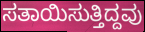
ಸತಾಯಿಸುತ್ತಿದ್ದವು